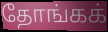
தோங்கக்